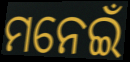
ମନେଇଁ